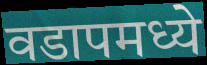
वडापमध्ये